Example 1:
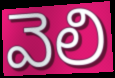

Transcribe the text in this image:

వెలి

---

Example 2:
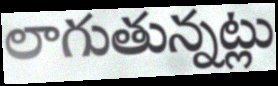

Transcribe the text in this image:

లాగుతున్నట్లు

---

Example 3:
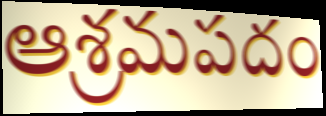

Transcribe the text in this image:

ఆశ్రమపదం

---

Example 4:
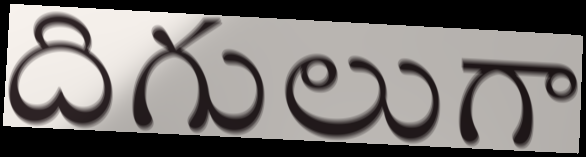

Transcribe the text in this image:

దిగులుగా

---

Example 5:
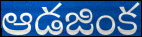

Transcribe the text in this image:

ఆడజింక